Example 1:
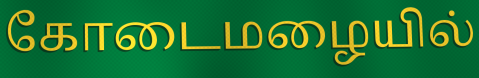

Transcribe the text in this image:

கோடைமழையில்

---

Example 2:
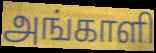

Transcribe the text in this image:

அங்காளி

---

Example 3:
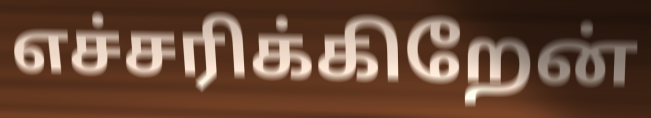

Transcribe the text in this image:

எச்சரிக்கிறேன்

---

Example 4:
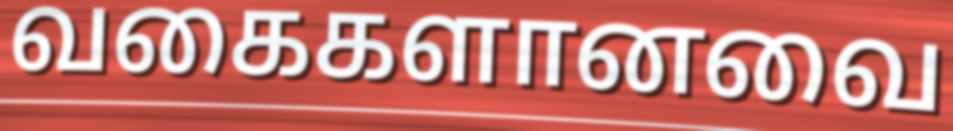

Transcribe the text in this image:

வகைகளானவை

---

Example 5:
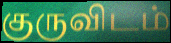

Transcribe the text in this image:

குருவிடம்